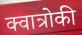
क्वात्रोकी